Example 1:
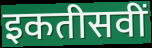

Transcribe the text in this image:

इकतीसवीं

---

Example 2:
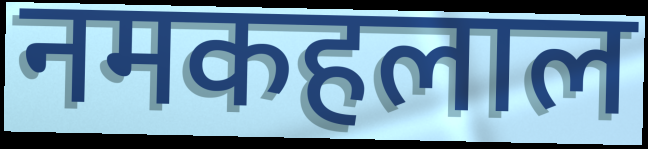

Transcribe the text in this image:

नमकहलाल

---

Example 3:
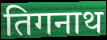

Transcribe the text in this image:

तिगनाथ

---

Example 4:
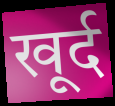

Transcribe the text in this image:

खूर्द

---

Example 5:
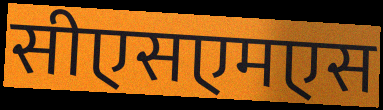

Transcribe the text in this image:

सीएसएमएस